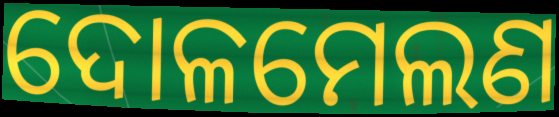
ଦୋଳମେଲଣ